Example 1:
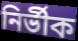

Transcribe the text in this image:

নিৰ্ভীক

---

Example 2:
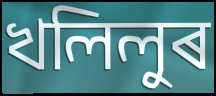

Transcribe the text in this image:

খলিলুৰ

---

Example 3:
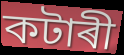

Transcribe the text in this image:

কটাৰী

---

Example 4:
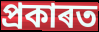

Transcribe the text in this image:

প্ৰকাৰত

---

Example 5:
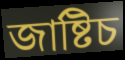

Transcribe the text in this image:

জাষ্টিচ